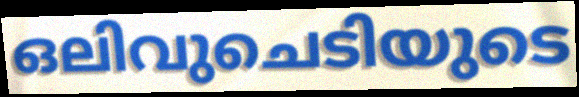
ഒലിവുചെടിയുടെ